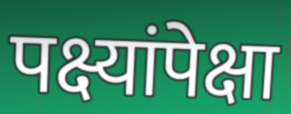
पक्ष्यांपेक्षा